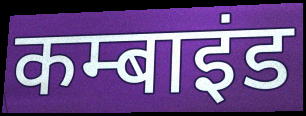
कम्बाइंड